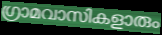
ഗ്രാമവാസികളാരും